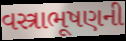
વસ્ત્રાભૂષણની